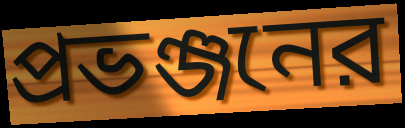
প্রভঞ্জনের